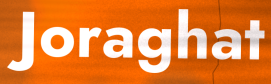
Joraghat